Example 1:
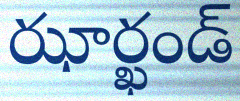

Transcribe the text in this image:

ఝార్ఖండ్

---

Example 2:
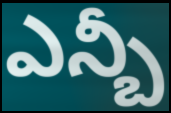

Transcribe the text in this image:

ఎన్బీ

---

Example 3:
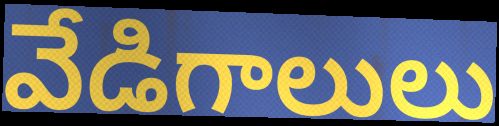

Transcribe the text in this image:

వేడిగాలులు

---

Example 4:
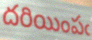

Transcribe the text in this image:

దరియింపఁ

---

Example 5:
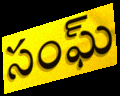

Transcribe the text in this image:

సంఘ్